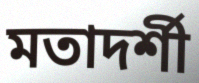
মতাদর্শী